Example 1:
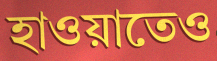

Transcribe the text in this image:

হাওয়াতেও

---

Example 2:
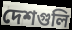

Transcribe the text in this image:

দেশগুলি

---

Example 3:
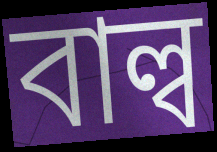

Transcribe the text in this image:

বাল্ব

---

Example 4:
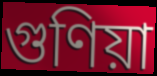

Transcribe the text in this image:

গুণিয়া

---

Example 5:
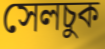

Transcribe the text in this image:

সেলচুক